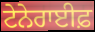
ਟੇਨੇਰਾਈਫ਼